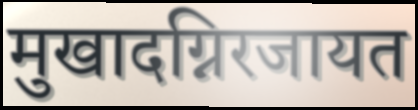
मुखादग्निरजायत